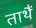
ताथैं